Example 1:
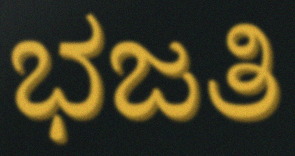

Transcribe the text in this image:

ಭಜತಿ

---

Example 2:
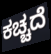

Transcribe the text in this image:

ಕಚ್ಚದೆ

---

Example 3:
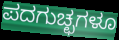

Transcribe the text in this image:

ಪದಗುಚ್ಛಗಳೂ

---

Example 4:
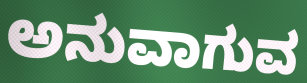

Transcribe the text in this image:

ಅನುವಾಗುವ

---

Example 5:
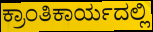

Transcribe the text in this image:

ಕ್ರಾಂತಿಕಾರ್ಯದಲ್ಲಿ